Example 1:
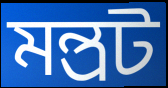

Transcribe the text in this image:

মন্ত্রট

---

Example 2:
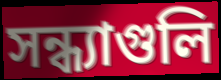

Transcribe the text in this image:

সন্ধ্যাগুলি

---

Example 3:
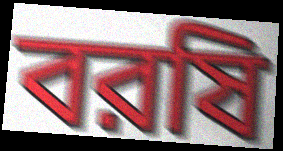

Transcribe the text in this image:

বরষি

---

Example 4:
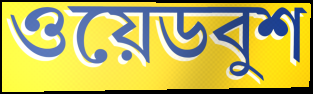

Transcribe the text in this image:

ওয়েডবুশ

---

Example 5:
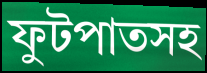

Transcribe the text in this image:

ফুটপাতসহ